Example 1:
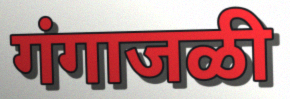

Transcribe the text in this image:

गंगाजळी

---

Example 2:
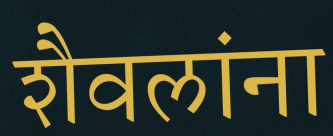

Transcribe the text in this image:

शैवलांना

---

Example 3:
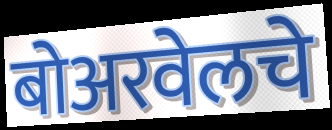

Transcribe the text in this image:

बोअरवेलचे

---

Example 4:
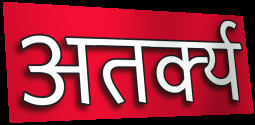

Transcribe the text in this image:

अतर्क्‍य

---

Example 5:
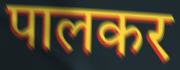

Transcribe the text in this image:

पालकर